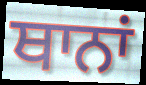
ਥਾਨਾਂ